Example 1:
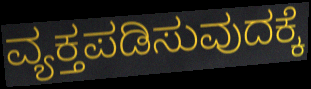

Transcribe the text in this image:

ವ್ಯಕ್ತಪಡಿಸುವುದಕ್ಕೆ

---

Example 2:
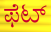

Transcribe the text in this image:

ಫೆಟ್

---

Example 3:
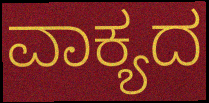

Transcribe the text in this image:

ವಾಕ್ಯದ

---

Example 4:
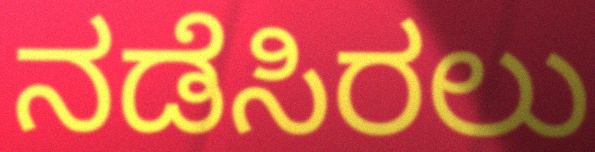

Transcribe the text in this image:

ನಡೆಸಿರಲು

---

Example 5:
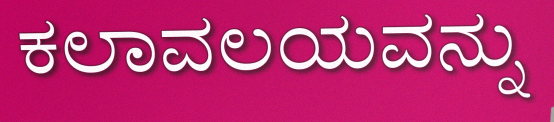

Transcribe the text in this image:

ಕಲಾವಲಯವನ್ನು